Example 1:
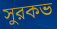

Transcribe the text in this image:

সুরকভ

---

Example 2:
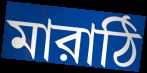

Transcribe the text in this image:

মারাঠি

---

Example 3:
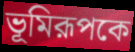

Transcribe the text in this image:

ভূমিরূপকে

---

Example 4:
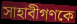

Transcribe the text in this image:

সাহাবীগণকে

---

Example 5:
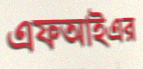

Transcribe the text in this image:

এফআইএর